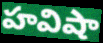
హవిషా